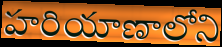
హరియాణాలోని